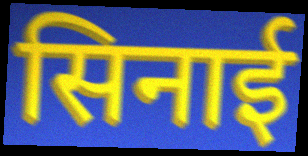
सिनाई